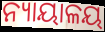
ନ୍ଯାୟାଳୟ